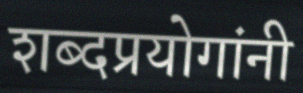
शब्दप्रयोगांनी